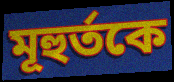
মূহুর্তকে